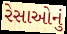
રેસાઓનું